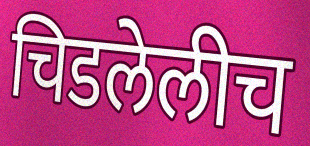
चिडलेलीच